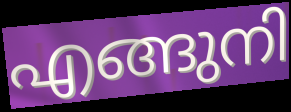
എങ്ങുനി